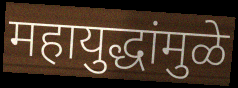
महायुद्धांमुळे